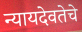
न्यायदेवतेचे